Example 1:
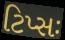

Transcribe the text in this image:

ટિપ્સઃ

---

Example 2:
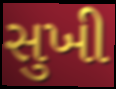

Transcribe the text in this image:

સુખી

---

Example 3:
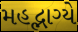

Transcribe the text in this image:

મહદ્ભાગ્યે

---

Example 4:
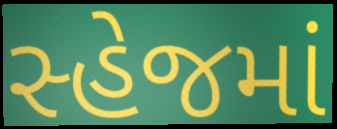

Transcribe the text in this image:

સ્હેજમાં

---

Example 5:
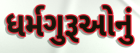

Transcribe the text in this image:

ધર્મગુરૂઓનું